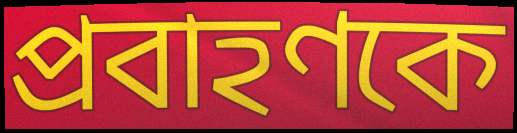
প্রবাহণকে